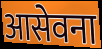
आसेवना